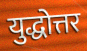
युद्धोत्तर